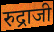
रुद्राजी